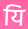
यि